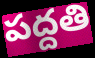
పద్దతి